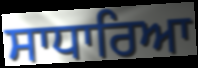
ਸਾਧਾਰਿਆ